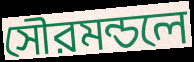
সৌরমন্ডলে